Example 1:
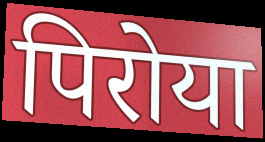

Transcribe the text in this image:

पिरोया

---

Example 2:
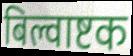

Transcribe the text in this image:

बिल्वाष्टक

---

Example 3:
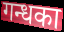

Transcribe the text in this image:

गन्धका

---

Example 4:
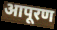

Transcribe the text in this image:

आपूरण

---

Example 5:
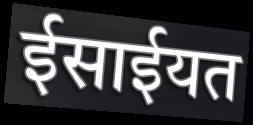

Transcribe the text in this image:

ईसाईयत